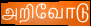
அறிவோடு